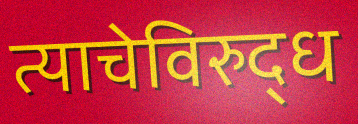
त्याचेविरुद्ध